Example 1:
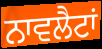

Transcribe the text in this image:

ਨਾਵਲੈਟਾਂ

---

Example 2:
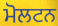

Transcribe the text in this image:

ਮੋਲਟਨ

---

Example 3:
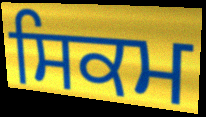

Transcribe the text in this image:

ਸਿਕਮ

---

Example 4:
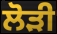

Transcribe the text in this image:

ਲੋੜੀ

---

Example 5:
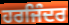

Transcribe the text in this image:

ਹਰਜਿੰਦਰ